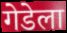
गेडेला